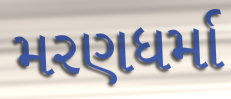
મરણધર્મા